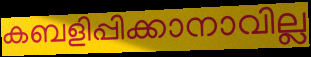
കബളിപ്പിക്കാനാവില്ല